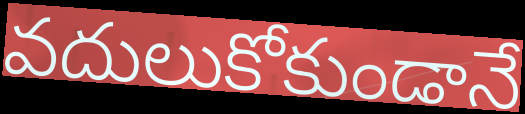
వదులుకోకుండానే